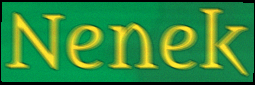
Nenek